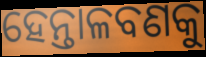
ହେନ୍ତାଳବଣକୁ